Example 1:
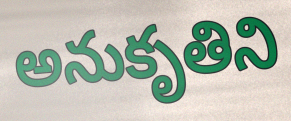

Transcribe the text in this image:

అనుకృతిని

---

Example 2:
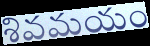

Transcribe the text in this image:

శివమయం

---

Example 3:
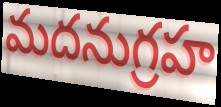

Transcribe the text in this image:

మదనుగ్రహ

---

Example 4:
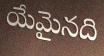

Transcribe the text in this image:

యేమైనది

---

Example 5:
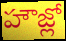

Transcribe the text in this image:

హౌజ్లో